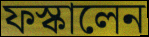
ফস্কালেন